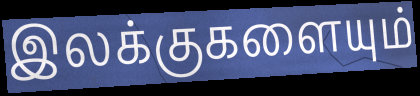
இலக்குகளையும்